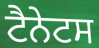
ਟੈਨੇਟਸ